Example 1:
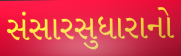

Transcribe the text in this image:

સંસારસુધારાનો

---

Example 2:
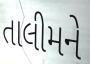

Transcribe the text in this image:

તાલીમને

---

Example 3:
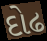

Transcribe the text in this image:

દોઢ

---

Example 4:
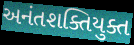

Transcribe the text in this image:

અનંતશક્તિયુક્ત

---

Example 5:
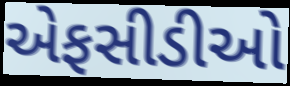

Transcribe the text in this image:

એફસીડીઓ